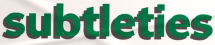
subtleties